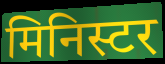
मिनिस्टर